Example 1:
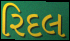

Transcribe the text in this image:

રિદલ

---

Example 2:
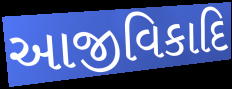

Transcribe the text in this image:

આજીવિકાદિ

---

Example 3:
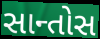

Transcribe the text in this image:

સાન્તોસ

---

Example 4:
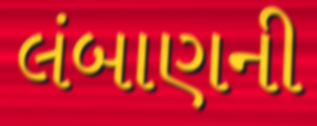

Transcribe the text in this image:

લંબાણની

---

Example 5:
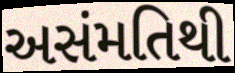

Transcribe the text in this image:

અસંમતિથી